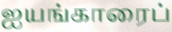
ஐயங்காரைப்